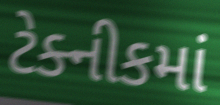
ટેક્નીકમાં